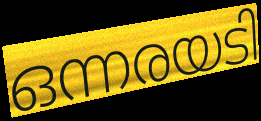
ഒന്നരയടി